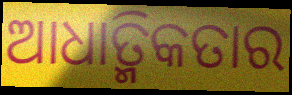
ଆଧାତ୍ମିକତାର